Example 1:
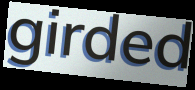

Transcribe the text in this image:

girded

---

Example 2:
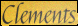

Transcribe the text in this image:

Clements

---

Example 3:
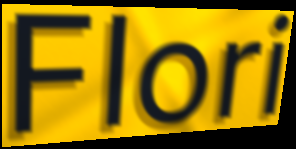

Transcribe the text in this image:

Flori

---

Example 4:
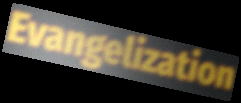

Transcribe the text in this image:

Evangelization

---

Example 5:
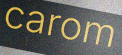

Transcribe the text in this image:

carom